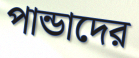
পান্ডাদের